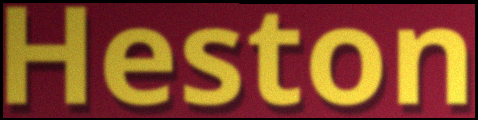
Heston